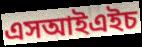
এসআইএইচ